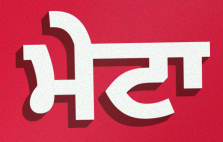
ਮੇਟਾ